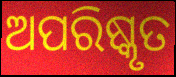
ଅପରିଷ୍କୃତ